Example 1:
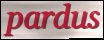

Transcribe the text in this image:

pardus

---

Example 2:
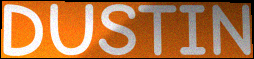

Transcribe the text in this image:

DUSTIN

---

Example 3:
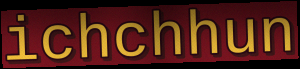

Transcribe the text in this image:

ichchhun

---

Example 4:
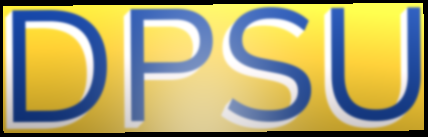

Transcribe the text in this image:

DPSU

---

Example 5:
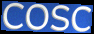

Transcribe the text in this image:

COSC